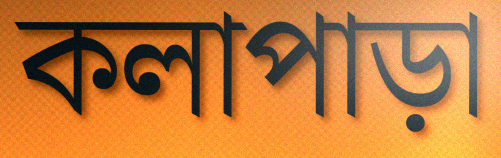
কলাপাড়া